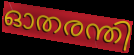
ഓതരന്തി